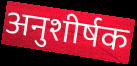
अनुशीर्षक